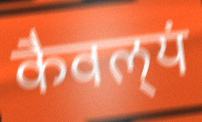
कैवल्यं